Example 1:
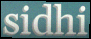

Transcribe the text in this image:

sidhi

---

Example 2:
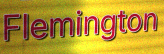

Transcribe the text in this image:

Flemington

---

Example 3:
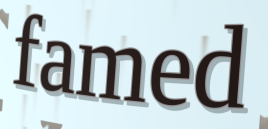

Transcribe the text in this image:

famed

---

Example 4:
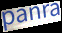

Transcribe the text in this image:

panra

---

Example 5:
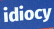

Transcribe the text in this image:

idiocy